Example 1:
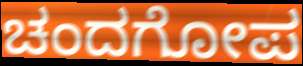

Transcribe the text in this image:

ಚಂದಗೋಪ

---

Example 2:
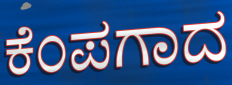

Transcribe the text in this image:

ಕೆಂಪಗಾದ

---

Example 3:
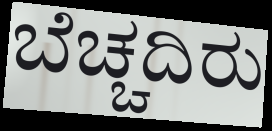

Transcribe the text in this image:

ಬೆಚ್ಚದಿರು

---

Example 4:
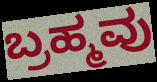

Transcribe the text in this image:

ಬ್ರಹ್ಮವು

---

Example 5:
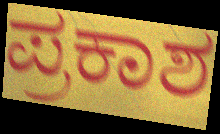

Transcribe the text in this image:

ಪ್ರಕಾಶ